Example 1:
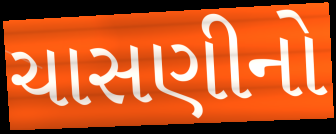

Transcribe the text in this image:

ચાસણીનો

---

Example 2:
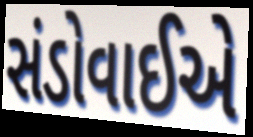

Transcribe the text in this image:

સંડોવાઈએ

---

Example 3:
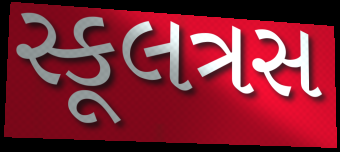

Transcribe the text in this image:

સ્કૂલત્રસ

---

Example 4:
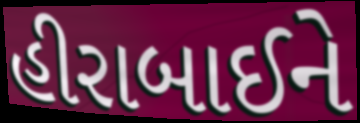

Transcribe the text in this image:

હીરાબાઈને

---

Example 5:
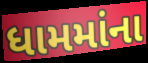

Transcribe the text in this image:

ધામમાંના